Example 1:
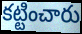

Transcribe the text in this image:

కట్టించారు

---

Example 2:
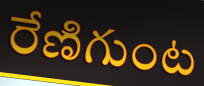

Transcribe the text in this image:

రేణిగుంట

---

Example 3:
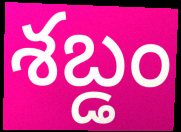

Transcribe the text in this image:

శబ్డం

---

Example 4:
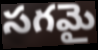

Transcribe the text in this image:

సగమై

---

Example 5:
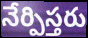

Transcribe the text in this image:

నేర్పిస్తరు